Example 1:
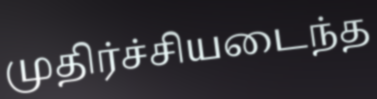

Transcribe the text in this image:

முதிர்ச்சியடைந்த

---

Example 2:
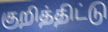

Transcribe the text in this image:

குறித்திட்டு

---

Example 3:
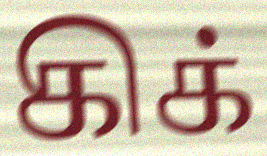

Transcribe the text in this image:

கிக்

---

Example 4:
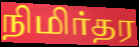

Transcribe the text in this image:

நிமிர்தர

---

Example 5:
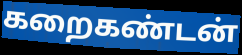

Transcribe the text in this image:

கறைகண்டன்